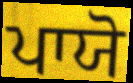
ਪਾਯੋ